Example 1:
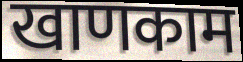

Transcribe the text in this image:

खाणकाम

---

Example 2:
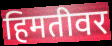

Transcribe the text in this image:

हिमतीवर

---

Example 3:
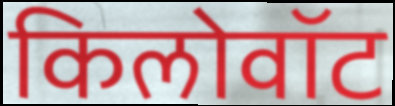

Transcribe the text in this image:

किलोवॉट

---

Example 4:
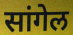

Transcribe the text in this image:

सांगेल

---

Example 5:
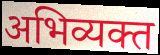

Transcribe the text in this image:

अभिव्यक्त